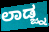
ಲಾಡ್ಜ್ನ